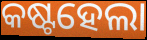
କଷ୍ଟହେଲା